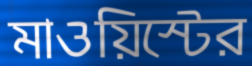
মাওয়িস্টের